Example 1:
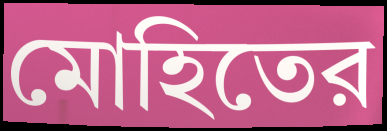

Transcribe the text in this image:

মোহিতের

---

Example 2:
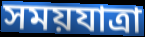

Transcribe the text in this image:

সময়যাত্রা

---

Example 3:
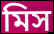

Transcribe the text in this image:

মিস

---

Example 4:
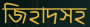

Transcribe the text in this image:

জিহাদসহ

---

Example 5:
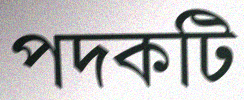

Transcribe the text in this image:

পদকটি